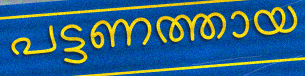
പട്ടണത്തായ